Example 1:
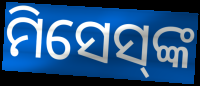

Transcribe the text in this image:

ମିସେସ୍‌ଙ୍କ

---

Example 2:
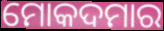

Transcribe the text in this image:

ମୋକଦମାର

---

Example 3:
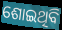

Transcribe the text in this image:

ଶୋଇଥିବି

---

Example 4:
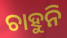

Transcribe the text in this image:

ଚାହୁନି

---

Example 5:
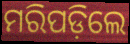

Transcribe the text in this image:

ମରିପଡ଼ିଲେ